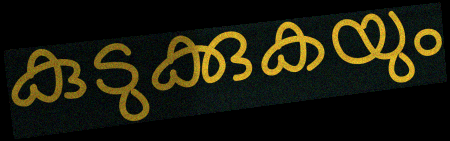
കുടുക്കുകയും